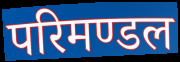
परिमण्डल